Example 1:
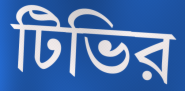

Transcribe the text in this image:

টিভির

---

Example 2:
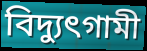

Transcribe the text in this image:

বিদ্যুৎগামী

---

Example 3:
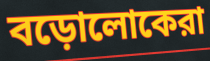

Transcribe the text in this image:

বড়োলোকেরা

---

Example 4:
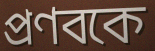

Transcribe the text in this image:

প্রণবকে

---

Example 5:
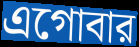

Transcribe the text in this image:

এগোবার